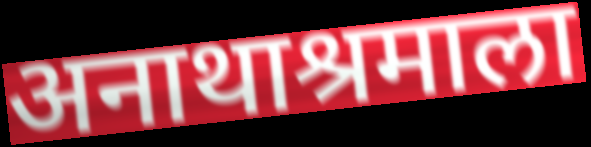
अनाथाश्रमाला